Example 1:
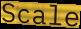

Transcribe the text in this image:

Scale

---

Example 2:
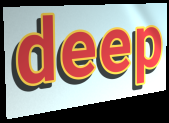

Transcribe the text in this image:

deep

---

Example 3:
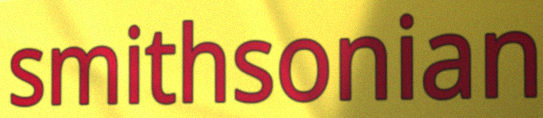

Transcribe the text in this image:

smithsonian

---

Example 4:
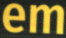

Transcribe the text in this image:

em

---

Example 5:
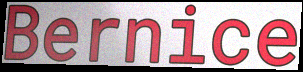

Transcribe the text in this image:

Bernice